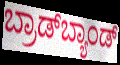
ಬ್ರಾಡ್‌ಬ್ಯಾಂಡ್